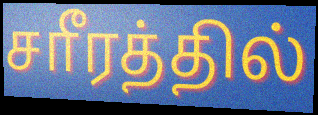
சரீரத்தில்